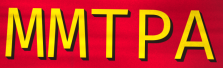
MMTPA